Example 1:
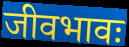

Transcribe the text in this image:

जीवभावः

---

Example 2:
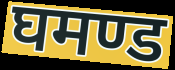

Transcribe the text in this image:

घमण्ड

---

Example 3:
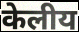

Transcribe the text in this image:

केलीय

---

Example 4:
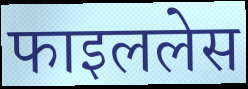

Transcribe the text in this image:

फाइललेस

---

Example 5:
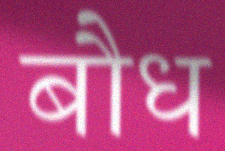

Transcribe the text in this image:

बौध